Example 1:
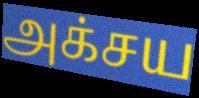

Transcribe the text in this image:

அக்சய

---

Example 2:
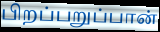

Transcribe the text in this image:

பிறப்பறுப்பான்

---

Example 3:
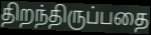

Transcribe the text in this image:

திறந்திருப்பதை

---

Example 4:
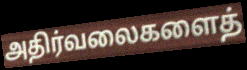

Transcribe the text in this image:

அதிர்வலைகளைத்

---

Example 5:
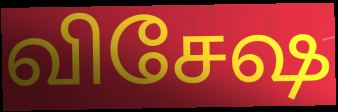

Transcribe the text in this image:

விசேஷ